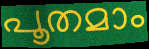
പൂതമാം